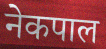
नेकपाल